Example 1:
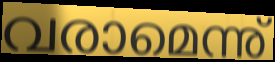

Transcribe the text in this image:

വരാമെന്നു്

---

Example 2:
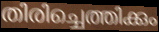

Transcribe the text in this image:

തിരിച്ചെത്തിക്കും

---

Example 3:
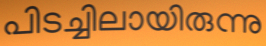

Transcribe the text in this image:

പിടച്ചിലായിരുന്നു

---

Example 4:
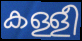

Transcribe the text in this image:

കള്ളീ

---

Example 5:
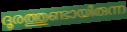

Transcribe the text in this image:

ദൂരത്തുണ്ടായിരുന്ന